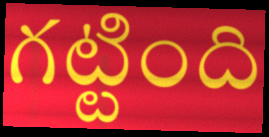
గట్టింది